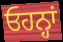
ਓਹਨ੍ਹਾਂ